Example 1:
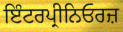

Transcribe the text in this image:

ਇੰਟਰਪ੍ਰੀਨਿਓਰਜ਼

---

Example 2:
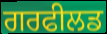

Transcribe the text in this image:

ਗਰਫੀਲਡ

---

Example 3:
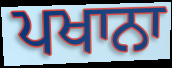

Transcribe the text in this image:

ਪਖਾਨਾ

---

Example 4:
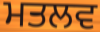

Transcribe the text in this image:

ਮਤਲਵ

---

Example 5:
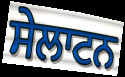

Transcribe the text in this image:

ਸੇਲਾਟਨ